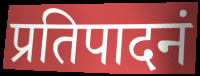
प्रतिपादनं